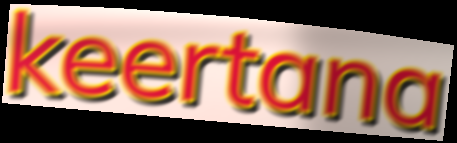
keertana